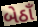
બેઠાઁ